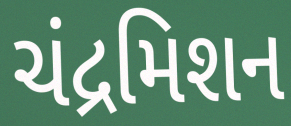
ચંદ્રમિશન